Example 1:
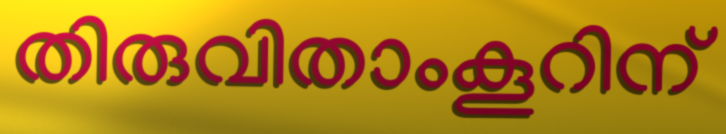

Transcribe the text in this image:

തിരുവിതാംകൂറിന്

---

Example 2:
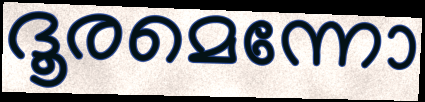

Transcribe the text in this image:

ദൂരമെന്നോ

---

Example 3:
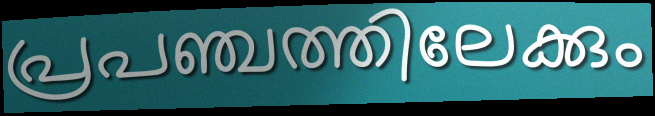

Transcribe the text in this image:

പ്രപഞ്ചത്തിലേക്കും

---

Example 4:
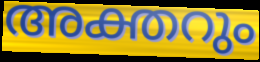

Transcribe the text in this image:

അക്തറും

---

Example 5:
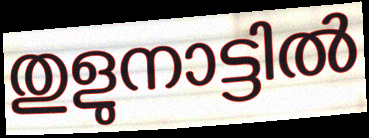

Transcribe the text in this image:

തുളുനാട്ടിൽ